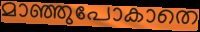
മാഞ്ഞുപോകാതെ